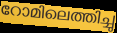
റോമിലെത്തിച്ചു